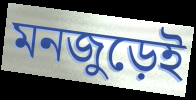
মনজুড়েই